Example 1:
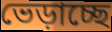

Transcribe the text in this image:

ভেড়াচ্ছে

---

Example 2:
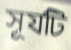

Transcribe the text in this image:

সূর্যটি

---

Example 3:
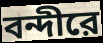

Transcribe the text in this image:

বন্দীরে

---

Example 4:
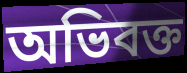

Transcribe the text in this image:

অভিবক্ত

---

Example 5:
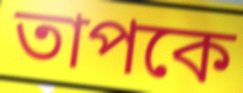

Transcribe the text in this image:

তাপকে